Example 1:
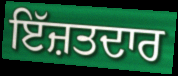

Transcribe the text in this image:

ਇੱਜ਼ਤਦਾਰ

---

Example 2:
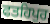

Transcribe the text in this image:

ਫਤਹਿਪੁਰ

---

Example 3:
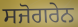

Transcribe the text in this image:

ਸਜੋਗਰੇਨ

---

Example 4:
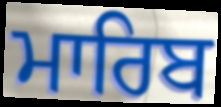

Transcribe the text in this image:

ਮਾਰਿਬ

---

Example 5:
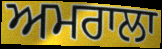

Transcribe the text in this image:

ਅਮਰਾਲਾ